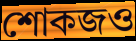
শোকজও